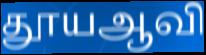
தூயஆவி